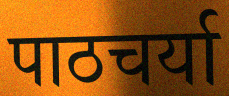
पाठचर्या